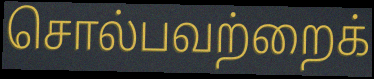
சொல்பவற்றைக்